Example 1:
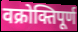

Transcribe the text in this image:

वक्रोक्तिपूर्ण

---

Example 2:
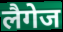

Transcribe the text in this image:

लैगेज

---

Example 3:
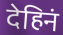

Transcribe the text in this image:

देहिनं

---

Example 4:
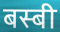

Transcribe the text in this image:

बस्बी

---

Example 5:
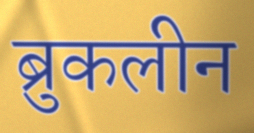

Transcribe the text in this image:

ब्रुकलीन